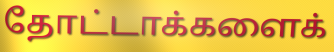
தோட்டாக்களைக்